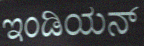
ಇಂಡಿಯನ್